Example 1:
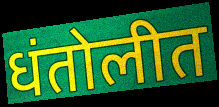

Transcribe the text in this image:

धंतोलीत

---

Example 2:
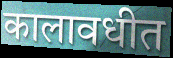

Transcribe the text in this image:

कालावधीत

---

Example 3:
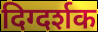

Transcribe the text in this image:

दिग्दर्शक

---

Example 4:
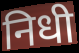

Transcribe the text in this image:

निधी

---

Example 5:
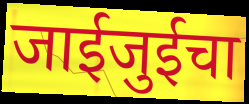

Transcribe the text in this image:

जाईजुईचा